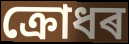
ক্ৰোধৰ